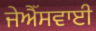
ਜੇਐੱਸਵਾਈ